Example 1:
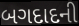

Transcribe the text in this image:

બગદાદની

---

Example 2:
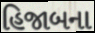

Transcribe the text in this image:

હિજાબના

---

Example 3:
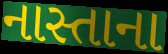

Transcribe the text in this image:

નાસ્તાના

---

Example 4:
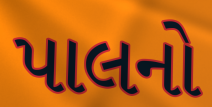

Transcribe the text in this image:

પાલનો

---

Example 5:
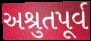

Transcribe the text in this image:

અશ્રુતપૂર્વ